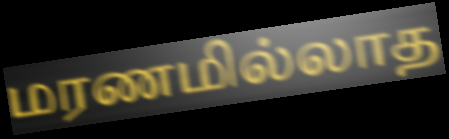
மரணமில்லாத